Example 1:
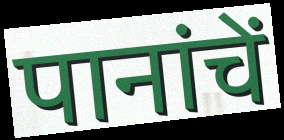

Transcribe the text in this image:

पानांचें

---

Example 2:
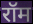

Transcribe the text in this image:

रॉम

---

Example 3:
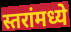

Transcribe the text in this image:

स्तरांमध्ये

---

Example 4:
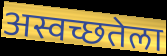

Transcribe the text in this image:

अस्वच्छतेला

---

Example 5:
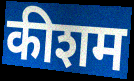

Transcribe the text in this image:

कीशम